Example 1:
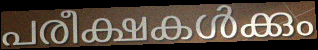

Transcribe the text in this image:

പരീക്ഷകൾക്കും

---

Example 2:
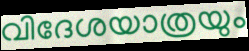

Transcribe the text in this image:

വിദേശയാത്രയും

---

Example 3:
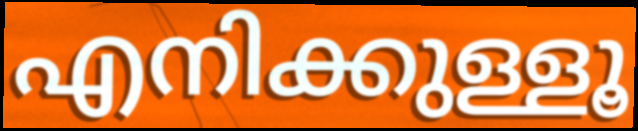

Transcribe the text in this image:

എനിക്കുള്ളൂ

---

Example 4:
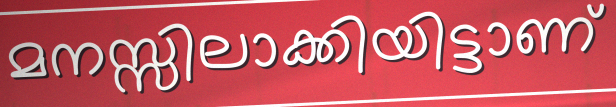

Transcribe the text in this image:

മനസ്സിലാക്കിയിട്ടാണ്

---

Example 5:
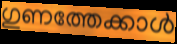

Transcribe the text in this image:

ഗുണത്തേക്കാൾ